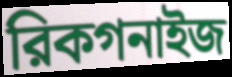
রিকগনাইজ